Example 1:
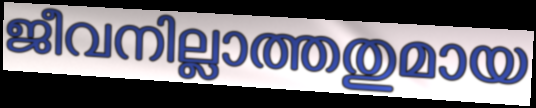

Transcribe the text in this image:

ജീവനില്ലാത്തതുമായ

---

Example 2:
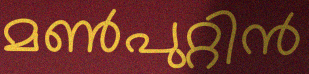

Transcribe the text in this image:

മൺപുറ്റിൻ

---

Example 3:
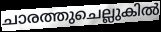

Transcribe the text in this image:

ചാരത്തുചെല്ലുകിൽ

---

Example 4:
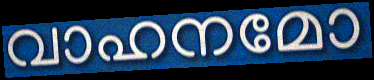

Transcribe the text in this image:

വാഹനമോ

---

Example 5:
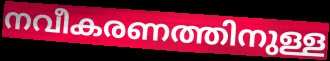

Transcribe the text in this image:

നവീകരണത്തിനുള്ള